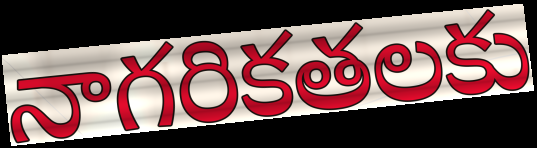
నాగరికతలకు